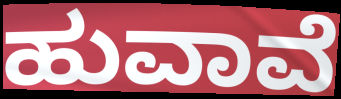
ಹುವಾವೆ